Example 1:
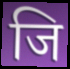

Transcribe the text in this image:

जि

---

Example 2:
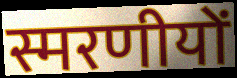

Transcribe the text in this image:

स्मरणीयों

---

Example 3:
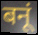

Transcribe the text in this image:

बनूं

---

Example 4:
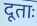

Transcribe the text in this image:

दूताः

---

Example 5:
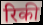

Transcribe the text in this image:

रिकी